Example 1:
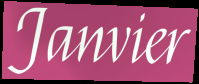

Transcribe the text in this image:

Janvier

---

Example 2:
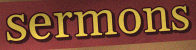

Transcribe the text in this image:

sermons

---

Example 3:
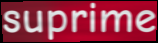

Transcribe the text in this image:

suprime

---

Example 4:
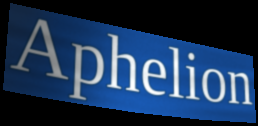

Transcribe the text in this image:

Aphelion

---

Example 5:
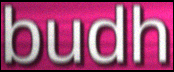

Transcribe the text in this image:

budh